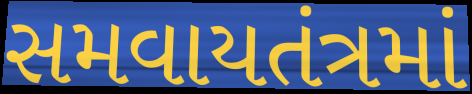
સમવાયતંત્રમાં